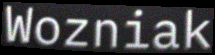
Wozniak